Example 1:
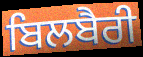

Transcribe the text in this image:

ਬਿਲਬੈਰੀ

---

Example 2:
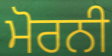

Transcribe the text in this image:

ਮੋਰਨੀ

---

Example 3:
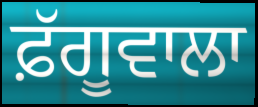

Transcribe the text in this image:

ਫ਼ੱਗੂਵਾਲਾ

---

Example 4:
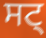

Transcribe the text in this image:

ਸਟ੍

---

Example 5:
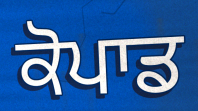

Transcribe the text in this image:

ਕੋਪਾਡ